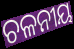
ଚଳନୀୟ